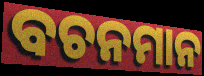
ବଚନମାନ